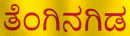
ತೆಂಗಿನಗಿಡ